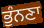
ਭੁੰਨਣਾ